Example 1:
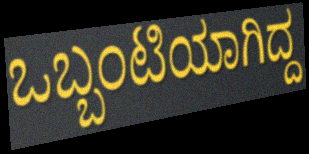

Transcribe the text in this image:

ಒಬ್ಬಂಟಿಯಾಗಿದ್ದ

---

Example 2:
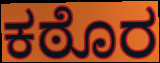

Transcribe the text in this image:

ಕಠೊರ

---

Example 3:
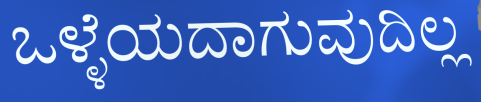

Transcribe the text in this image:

ಒಳ್ಳೆಯದಾಗುವುದಿಲ್ಲ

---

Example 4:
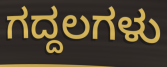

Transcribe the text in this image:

ಗದ್ದಲಗಳು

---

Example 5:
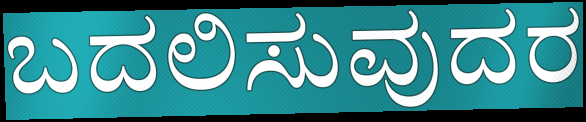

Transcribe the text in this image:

ಬದಲಿಸುವುದರ